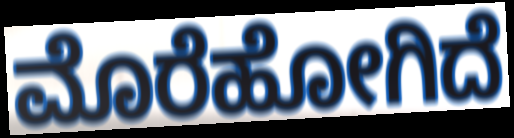
ಮೊರೆಹೋಗಿದೆ